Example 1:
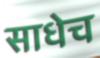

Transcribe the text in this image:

साधेच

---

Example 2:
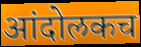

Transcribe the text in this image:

आंदोलकच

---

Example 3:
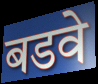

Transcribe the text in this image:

बडवे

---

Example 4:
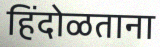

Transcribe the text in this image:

हिंदोळताना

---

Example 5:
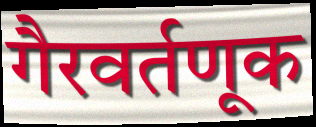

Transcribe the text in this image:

गैरवर्तणूक